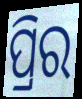
ପ୍ରିର